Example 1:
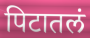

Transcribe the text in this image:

पिटातलं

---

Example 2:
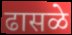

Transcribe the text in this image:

ढासळे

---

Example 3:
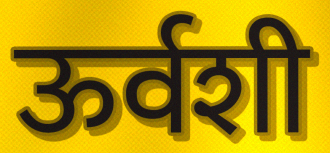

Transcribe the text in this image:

ऊर्वशी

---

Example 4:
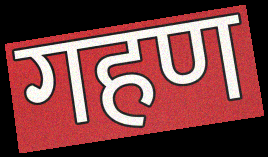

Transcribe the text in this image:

गहण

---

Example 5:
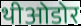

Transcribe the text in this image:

थीओडोर